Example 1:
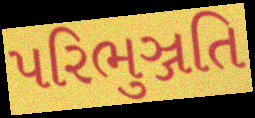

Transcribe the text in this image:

પરિભુઞ્જતિ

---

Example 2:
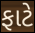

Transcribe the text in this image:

ફાટે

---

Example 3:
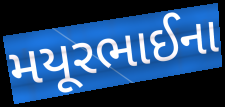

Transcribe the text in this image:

મયૂરભાઈના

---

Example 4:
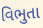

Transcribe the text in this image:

વિભુતા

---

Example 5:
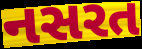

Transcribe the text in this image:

નસરત